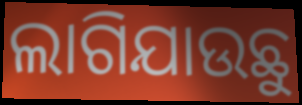
ଲାଗିଯାଉଛୁ